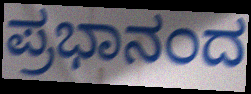
ಪ್ರಭಾನಂದ